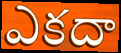
ఎకదా